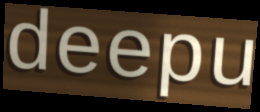
deepu